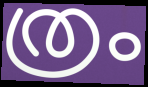
ത്രം